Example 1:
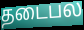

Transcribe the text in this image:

தடைபல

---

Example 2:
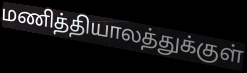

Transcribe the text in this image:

மணித்தியாலத்துக்குள்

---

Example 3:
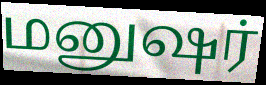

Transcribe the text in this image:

மனுஷர்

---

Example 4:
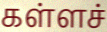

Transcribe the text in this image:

கள்ளச்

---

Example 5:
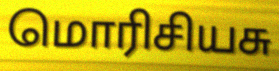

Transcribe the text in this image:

மொரிசியசு